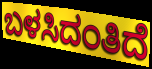
ಬಳಸಿದಂತಿದೆ